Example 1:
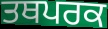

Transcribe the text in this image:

ਤਥਪਰਕ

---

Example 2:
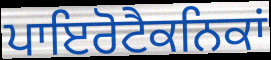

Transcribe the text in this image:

ਪਾਇਰੋਟੈਕਨਿਕਾਂ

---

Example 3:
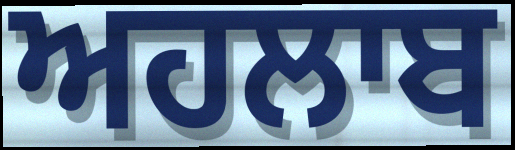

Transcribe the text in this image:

ਅਹਲਾਬ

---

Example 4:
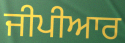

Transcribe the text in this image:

ਜੀਪੀਆਰ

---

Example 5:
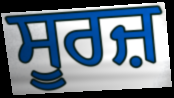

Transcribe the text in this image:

ਸੂਰਜ਼